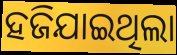
ହଜିଯାଇଥିଲା